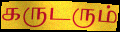
கருடரும்